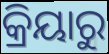
କ୍ରିୟାରୁ